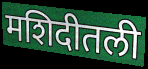
मशिदीतली